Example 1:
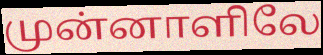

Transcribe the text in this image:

முன்னாளிலே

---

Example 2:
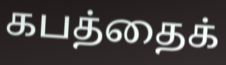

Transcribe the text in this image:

கபத்தைக்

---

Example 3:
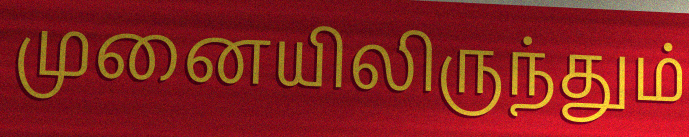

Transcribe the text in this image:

முனையிலிருந்தும்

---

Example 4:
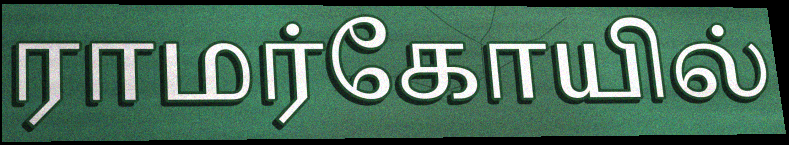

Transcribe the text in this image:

ராமர்கோயில்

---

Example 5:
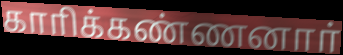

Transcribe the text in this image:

காரிக்கண்ணனார்